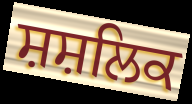
ਸ਼ਸ਼ਲਿਕ